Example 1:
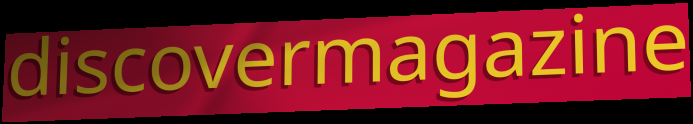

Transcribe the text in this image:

discovermagazine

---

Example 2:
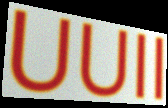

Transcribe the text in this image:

UUII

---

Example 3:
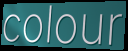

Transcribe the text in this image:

colour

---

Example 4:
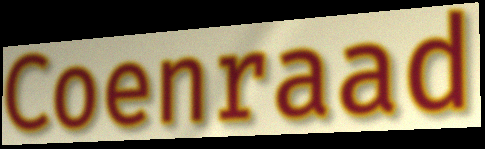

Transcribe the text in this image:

Coenraad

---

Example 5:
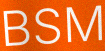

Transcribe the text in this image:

BSM